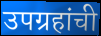
उपग्रहांची